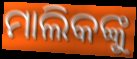
ମାଲିକଙ୍କୁ